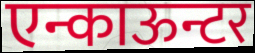
एन्काऊन्टर